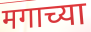
मगाच्या